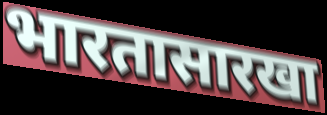
भारतासारखा